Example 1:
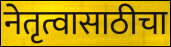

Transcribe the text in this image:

नेतृत्वासाठीचा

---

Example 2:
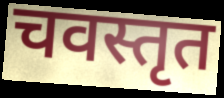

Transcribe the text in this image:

चवस्तृत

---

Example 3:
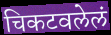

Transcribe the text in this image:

चिकटवलेलं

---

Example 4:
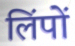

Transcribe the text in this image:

लिंपों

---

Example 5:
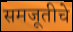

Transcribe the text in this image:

समजूतीचे